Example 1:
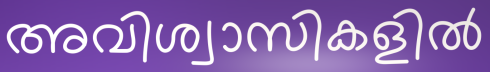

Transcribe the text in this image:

അവിശ്വാസികളിൽ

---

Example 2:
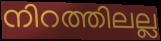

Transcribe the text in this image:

നിറത്തിലല്ല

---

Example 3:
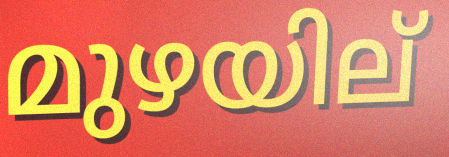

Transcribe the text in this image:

മുഴയില്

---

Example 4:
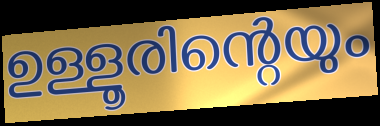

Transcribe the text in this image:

ഉള്ളൂരിന്റെയും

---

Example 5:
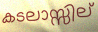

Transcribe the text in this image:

കടലാസ്സില്